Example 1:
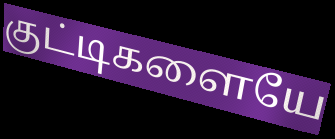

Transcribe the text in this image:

குட்டிகளையே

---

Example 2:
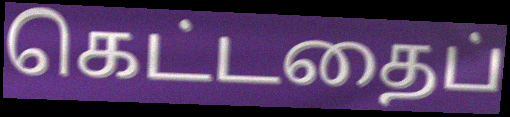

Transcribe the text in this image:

கெட்டதைப்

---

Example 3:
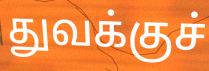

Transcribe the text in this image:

துவக்குச்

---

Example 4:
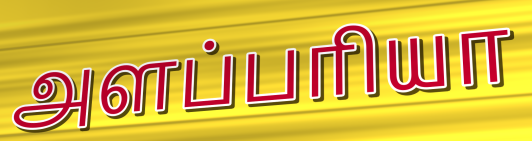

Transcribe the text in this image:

அளப்பரியா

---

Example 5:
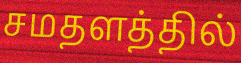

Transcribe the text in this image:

சமதளத்தில்